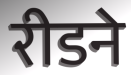
रीडने